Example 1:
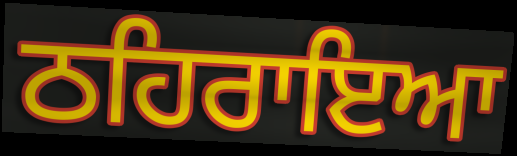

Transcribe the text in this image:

ਠਹਿਰਾਇਆ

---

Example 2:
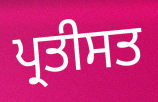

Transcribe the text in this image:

ਪ੍ਰਤੀਸਤ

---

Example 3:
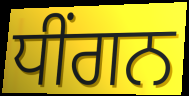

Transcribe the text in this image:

ਧੀਂਗਨ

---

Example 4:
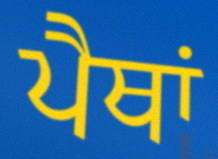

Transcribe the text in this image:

ਪੈਥਾਂ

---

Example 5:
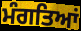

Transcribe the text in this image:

ਮੰਗਤਿਆਂ